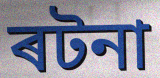
ৰটনা